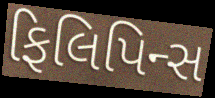
ફિલિપિન્સ